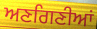
ਅਣਗਿਣੀਆਂ